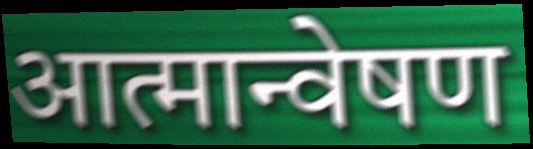
आत्मान्वेषण